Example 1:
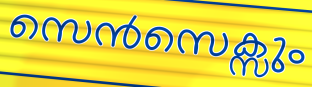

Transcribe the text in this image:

സെൻസെക്സും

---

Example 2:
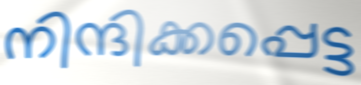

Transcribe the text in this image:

നിന്ദിക്കപ്പെട്ട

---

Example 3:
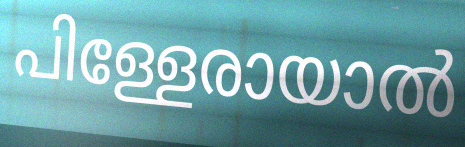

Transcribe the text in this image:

പിള്ളേരായാൽ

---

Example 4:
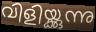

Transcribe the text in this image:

വിളിയ്ക്കുന്നു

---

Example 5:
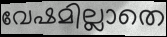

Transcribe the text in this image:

വേഷമില്ലാതെ